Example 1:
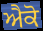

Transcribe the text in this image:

ਐਕੋ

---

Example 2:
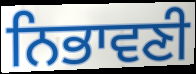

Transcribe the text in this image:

ਨਿਭਾਵਣੀ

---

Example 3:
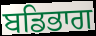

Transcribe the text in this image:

ਬਡਿਭਾਗ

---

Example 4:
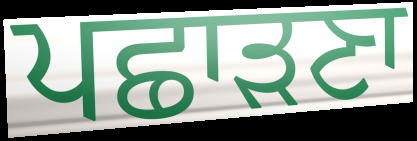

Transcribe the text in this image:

ਪਛਾੜਣਾ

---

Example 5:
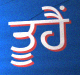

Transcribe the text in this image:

ਤੂਹੈਂ